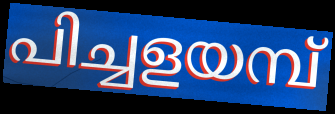
പിച്ചളയമ്പ്